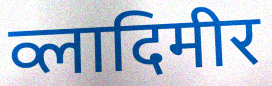
व्लादिमीर